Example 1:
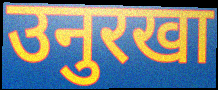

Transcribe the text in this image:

उनुरखा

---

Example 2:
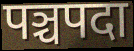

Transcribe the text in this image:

पञ्चपदा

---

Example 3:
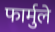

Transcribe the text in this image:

फार्मुले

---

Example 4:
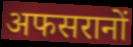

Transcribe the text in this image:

अफसरानों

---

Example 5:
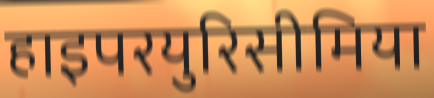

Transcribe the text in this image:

हाइपरयुरिसीमिया